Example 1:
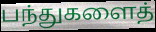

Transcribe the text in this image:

பந்துகளைத்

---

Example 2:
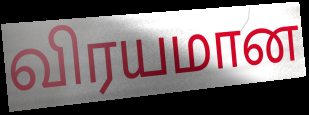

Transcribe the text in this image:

விரயமான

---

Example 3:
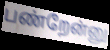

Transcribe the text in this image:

பண்றேன்னு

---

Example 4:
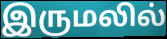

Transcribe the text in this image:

இருமலில்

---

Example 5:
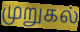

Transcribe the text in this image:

முறுகல்